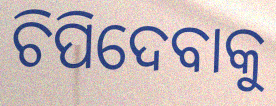
ଚିପିଦେବାକୁ